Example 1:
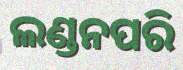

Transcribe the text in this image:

ଲଣ୍ଡନପରି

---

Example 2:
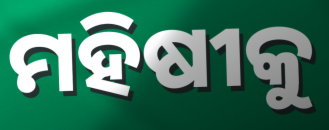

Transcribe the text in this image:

ମହିଷୀକୁ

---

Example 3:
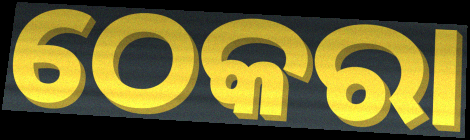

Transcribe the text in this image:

ଠେକରା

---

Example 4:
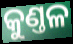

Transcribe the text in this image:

କୁଣ୍ତଳ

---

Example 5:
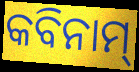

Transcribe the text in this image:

କବିନାମ୍